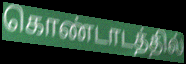
கொண்டாடத்தில்